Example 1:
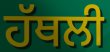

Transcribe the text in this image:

ਹੱਥਲੀ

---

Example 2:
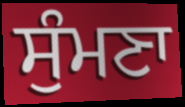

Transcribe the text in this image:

ਸੁੰਮਣਾ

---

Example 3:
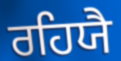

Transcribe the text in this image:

ਰਹਿਯੈ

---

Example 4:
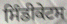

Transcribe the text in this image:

ਸਿੰਡੀਕੇਟਸ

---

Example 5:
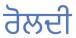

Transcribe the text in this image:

ਰੋਲਦੀ